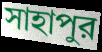
সাহাপুর